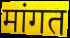
मांगत